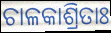
ଚାଳକାଶ୍ରିତାଃ